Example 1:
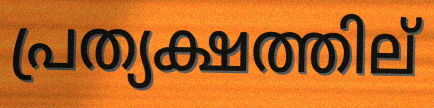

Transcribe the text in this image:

പ്രത്യക്ഷത്തില്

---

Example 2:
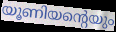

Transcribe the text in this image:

യൂണിയന്റെയും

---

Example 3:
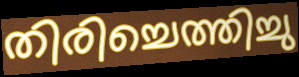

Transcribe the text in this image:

തിരിച്ചെത്തിച്ചു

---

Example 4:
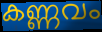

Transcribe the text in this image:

കണ്ണവം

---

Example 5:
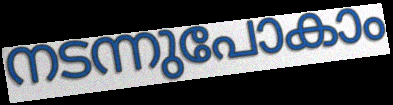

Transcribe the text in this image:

നടന്നുപോകാം